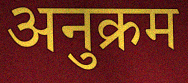
अनुक्रम